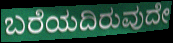
ಬರೆಯದಿರುವುದೇ